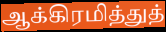
ஆக்கிரமித்துத்